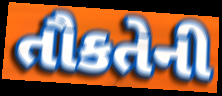
તૌકતેની